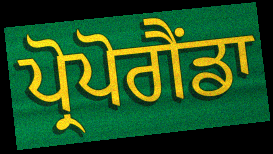
ਪ੍ਰੋਪੋਗੈਂਡਾ